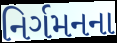
નિર્ગમનના